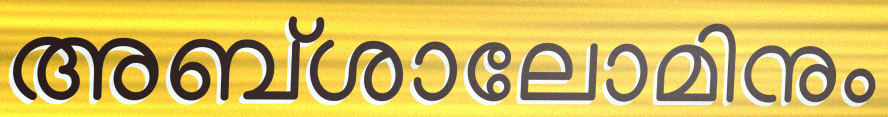
അബ്ശാലോമിനും